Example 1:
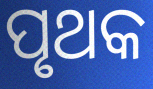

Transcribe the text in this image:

ପୃଥକ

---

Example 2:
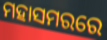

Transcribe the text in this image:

ମହାସମରରେ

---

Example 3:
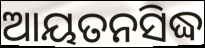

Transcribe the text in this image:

ଆୟତନସିଦ୍ଧ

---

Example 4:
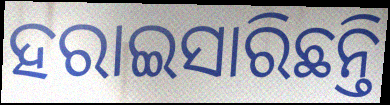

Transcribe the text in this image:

ହରାଇସାରିଛନ୍ତି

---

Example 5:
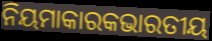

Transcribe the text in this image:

ନିୟମାକାରକଭାରତୀୟ